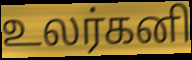
உலர்கனி